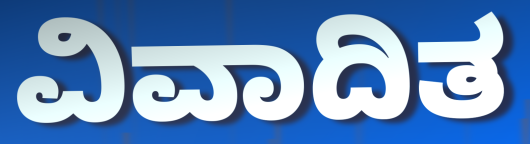
ವಿವಾದಿತ